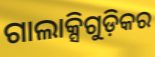
ଗାଲାକ୍ସିଗୁଡ଼ିକର